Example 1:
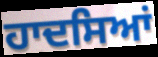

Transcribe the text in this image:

ਹਾਦਸਿਆਂ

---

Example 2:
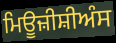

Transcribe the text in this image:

ਮਿਊਜ਼ੀਸ਼ੀਅੰਸ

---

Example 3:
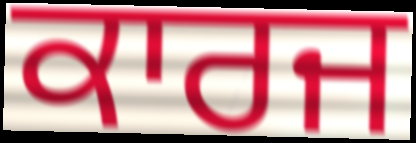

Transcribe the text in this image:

ਕਾਰਜ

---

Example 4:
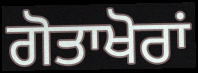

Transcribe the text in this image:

ਗੋਤਾਖੋਰਾਂ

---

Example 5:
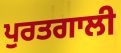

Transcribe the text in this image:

ਪੁਰਤਗਾਲੀ